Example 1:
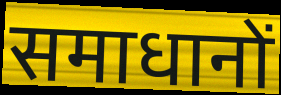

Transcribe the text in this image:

समाधानों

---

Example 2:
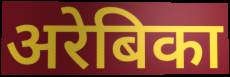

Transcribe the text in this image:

अरेबिका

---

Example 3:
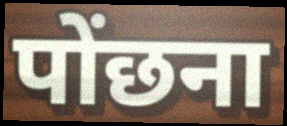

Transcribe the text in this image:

पोंछना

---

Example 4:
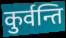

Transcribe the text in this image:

कुर्वन्ति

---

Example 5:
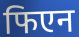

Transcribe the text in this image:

फिएन